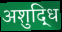
अशुद्धि